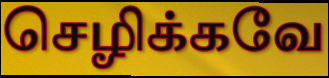
செழிக்கவே